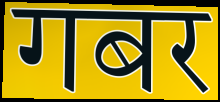
गबर